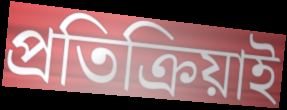
প্ৰতিক্ৰিয়াই